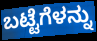
ಬಟ್ಟೆಗೆಳನ್ನು